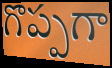
గొప్పగా